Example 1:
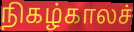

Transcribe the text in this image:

நிகழ்காலச்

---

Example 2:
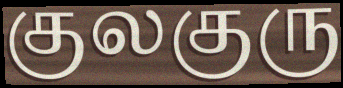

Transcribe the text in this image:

குலகுரு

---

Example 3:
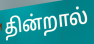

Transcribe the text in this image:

தின்றால்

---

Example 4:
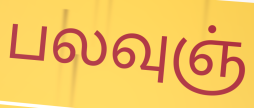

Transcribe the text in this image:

பலவுஞ்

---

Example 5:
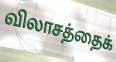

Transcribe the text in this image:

விலாசத்தைக்